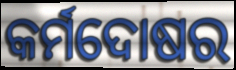
କର୍ମଦୋଷର